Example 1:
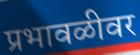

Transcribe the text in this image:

प्रभावळीवर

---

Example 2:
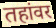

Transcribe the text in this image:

तहांवर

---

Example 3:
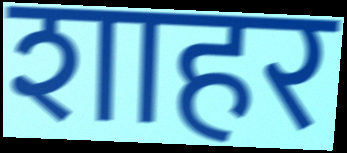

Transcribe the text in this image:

शाहर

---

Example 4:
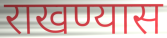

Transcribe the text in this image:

राखण्यास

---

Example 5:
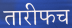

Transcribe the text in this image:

तारीफच